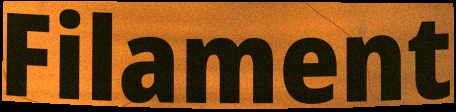
Filament